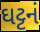
ઘટ્ટનં